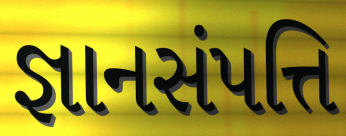
જ્ઞાનસંપત્તિ